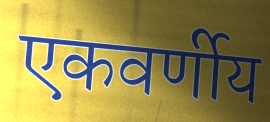
एकवर्णीय